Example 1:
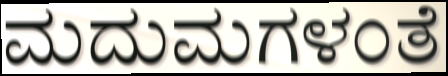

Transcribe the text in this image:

ಮದುಮಗಳಂತೆ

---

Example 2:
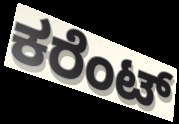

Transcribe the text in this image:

ಕರೆಂಟ್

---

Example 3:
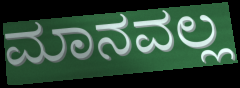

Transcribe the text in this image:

ಮಾನವಲ್ಲ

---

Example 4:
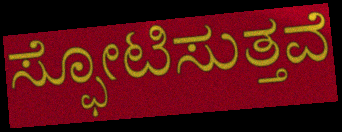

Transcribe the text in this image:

ಸ್ಫೋಟಿಸುತ್ತವೆ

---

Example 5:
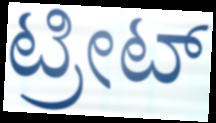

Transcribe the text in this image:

ಟ್ರೀಟ್